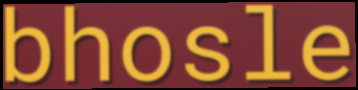
bhosle